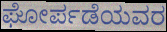
ಘೋರ್ಪಡೆಯವರ